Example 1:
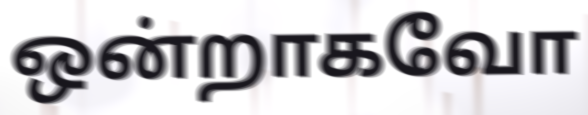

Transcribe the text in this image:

ஒன்றாகவோ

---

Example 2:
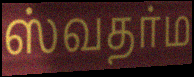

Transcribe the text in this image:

ஸ்வதர்ம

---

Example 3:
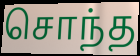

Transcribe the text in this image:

சொந்த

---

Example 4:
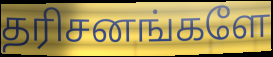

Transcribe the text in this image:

தரிசனங்களே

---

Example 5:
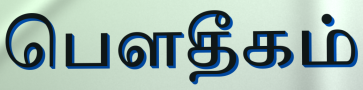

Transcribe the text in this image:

பௌதீகம்